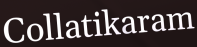
Collatikaram